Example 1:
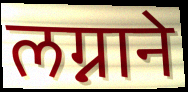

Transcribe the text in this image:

लग्नाने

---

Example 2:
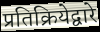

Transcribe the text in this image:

प्रतिक्रियेद्वारे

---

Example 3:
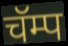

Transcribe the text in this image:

चॅम्प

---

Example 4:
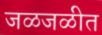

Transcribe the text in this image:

जळजळीत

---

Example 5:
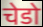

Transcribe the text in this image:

चेडो